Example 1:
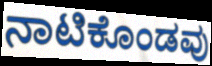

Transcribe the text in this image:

ನಾಟಿಕೊಂಡವು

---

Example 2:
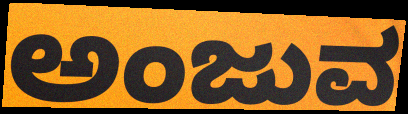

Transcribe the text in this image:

ಅಂಜುವ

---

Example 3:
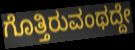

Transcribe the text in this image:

ಗೊತ್ತಿರುವಂಥದ್ದೇ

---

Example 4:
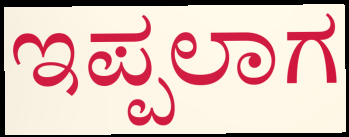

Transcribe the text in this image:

ಇಪ್ಪಲಾಗ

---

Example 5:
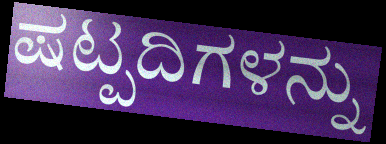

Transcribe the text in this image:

ಷಟ್ಪದಿಗಳನ್ನು